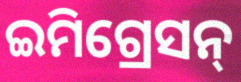
ଇମିଗ୍ରେସନ୍